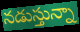
నడుస్తున్నా